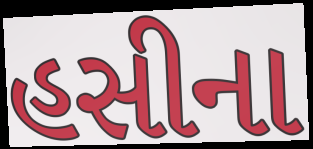
હસીના